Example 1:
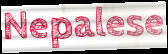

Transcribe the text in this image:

Nepalese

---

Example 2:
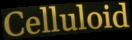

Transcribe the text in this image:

Celluloid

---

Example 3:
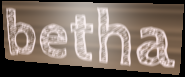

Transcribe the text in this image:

betha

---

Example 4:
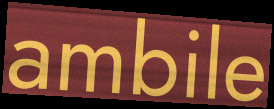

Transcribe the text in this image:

ambile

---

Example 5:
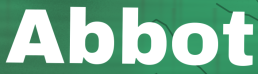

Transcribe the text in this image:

Abbot